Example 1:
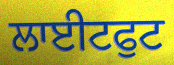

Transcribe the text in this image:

ਲਾਈਟਫੁਟ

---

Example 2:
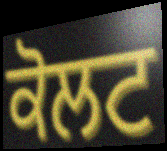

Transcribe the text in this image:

ਕੋਲਟ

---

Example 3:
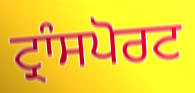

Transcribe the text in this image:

ਟ੍ਰਾੰਸਪੋਰਟ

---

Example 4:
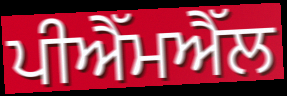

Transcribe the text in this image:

ਪੀਐੱਮਐੱਲ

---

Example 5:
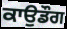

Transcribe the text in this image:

ਕਾਉਡੌਗ